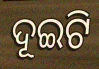
ଦୂଇଟି